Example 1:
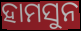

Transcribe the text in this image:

ହାମସୁନ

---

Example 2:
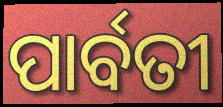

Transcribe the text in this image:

ପାର୍ବତୀ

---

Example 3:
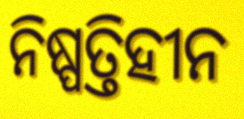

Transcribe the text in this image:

ନିଷ୍ପତ୍ତିହୀନ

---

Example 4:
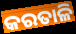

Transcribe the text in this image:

କରତାଳି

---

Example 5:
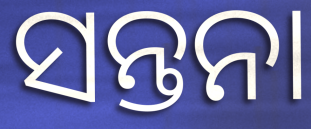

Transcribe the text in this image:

ସନ୍ତନା